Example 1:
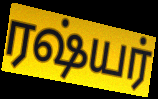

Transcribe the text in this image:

ரஷ்யர்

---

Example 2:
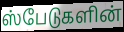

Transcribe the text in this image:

ஸ்பேடுகளின்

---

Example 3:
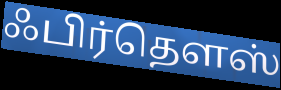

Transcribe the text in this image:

ஃபிர்தௌஸ்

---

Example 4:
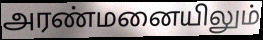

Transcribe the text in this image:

அரண்மனையிலும்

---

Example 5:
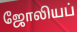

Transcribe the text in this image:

ஜோலியப்